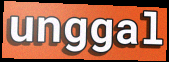
unggal